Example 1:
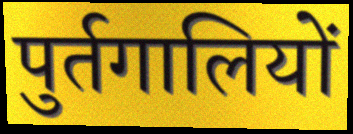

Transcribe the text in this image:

पुर्तगालियों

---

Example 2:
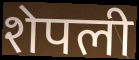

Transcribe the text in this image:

शेपली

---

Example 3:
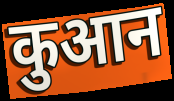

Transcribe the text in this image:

कुआन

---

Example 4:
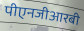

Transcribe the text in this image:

पीएनजीआरबी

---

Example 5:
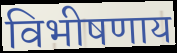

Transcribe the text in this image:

विभीषणाय